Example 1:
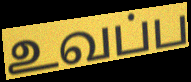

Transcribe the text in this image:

உவப்ப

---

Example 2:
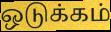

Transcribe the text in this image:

ஒடுக்கம்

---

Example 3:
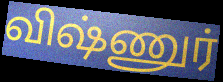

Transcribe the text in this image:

விஷ்ணுர்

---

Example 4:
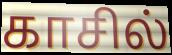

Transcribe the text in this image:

காசில்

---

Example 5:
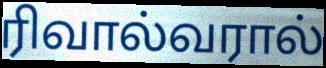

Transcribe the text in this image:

ரிவால்வரால்